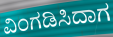
ವಿಂಗಡಿಸಿದಾಗ